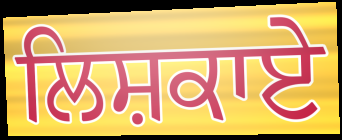
ਲਿਸ਼ਕਾਏ